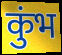
कुंभ